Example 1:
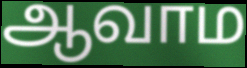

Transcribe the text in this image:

ஆவாம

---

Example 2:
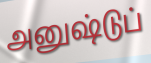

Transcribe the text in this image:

அனுஷ்டுப்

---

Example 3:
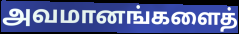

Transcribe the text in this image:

அவமானங்களைத்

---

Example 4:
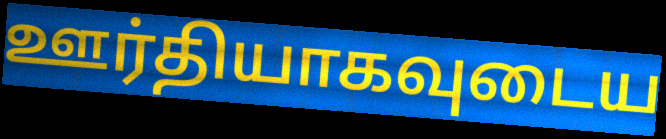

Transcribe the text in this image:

ஊர்தியாகவுடைய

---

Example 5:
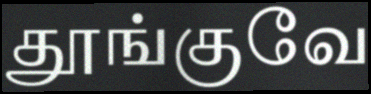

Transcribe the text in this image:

தூங்குவே